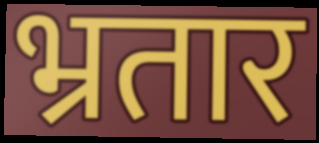
भ्रतार